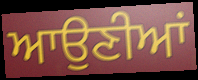
ਆਉਣੀਆਂ